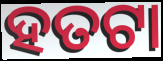
ହତଟା